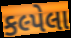
કલ્પેલા